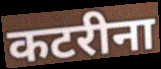
कटरीना